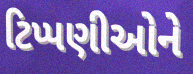
ટિપ્પણીઓને